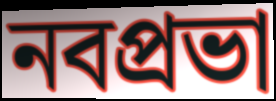
নবপ্রভা